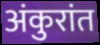
अंकुरांत